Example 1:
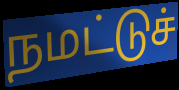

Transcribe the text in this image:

நமட்டுச்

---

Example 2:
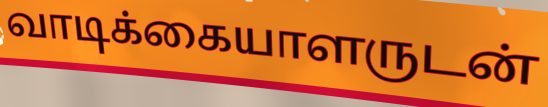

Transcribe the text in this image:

வாடிக்கையாளருடன்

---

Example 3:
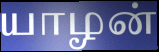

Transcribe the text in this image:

யாழன்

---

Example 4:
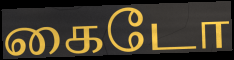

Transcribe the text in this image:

கைடோ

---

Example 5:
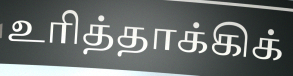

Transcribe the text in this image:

உரித்தாக்கிக்